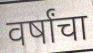
वर्षांचा